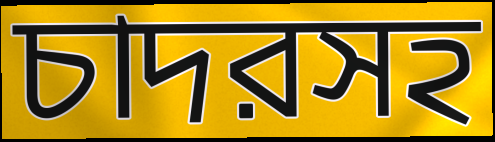
চাদরসহ